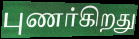
புணர்கிறது